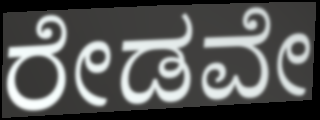
ರೇಡವೇ